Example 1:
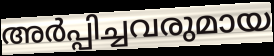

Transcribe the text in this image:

അർപ്പിച്ചവരുമായ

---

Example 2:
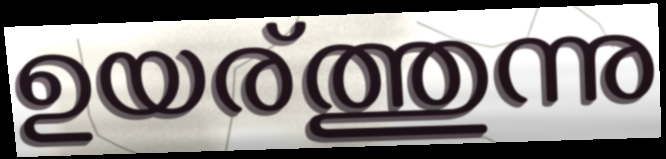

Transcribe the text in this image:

ഉയര്ത്തുന്നു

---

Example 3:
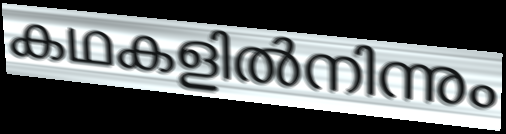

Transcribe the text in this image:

കഥകളിൽനിന്നും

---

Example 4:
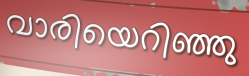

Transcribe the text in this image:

വാരിയെറിഞ്ഞു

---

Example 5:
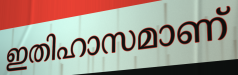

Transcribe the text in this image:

ഇതിഹാസമാണ്